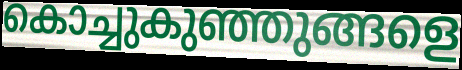
കൊച്ചുകുഞ്ഞുങ്ങളെ